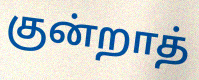
குன்றாத்